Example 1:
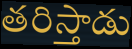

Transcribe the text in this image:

తరిస్తాడు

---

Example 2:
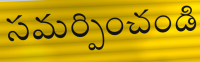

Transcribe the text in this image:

సమర్పించండి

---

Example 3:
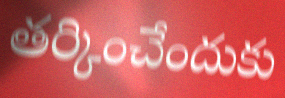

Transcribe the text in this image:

తర్కించేందుకు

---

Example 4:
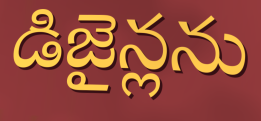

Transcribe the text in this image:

డిజైన్లను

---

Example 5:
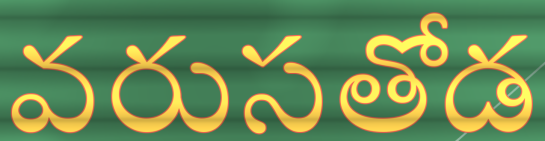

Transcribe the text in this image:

వరుసతోడ